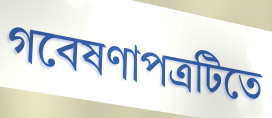
গবেষণাপত্রটিতে